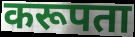
करूपता